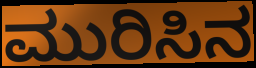
ಮುರಿಸಿನ